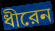
ধীরেন